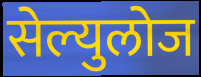
सेल्युलोज